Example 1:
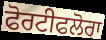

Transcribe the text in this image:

ਫੋਰਟੀਫਲੋਰਾ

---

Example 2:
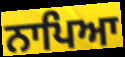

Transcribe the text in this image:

ਨਾਪਿਆ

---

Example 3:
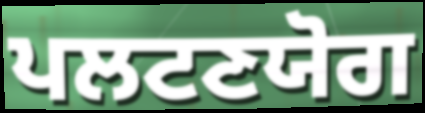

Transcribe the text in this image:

ਪਲਟਣਯੋਗ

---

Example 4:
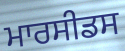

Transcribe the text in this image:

ਮਾਰਸੀਡਸ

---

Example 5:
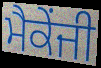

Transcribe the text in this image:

ਮੈਕੇਂਜੀ